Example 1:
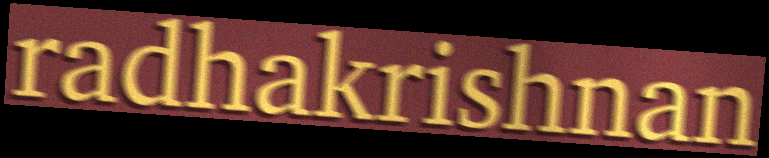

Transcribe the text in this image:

radhakrishnan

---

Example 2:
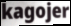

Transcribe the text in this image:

kagojer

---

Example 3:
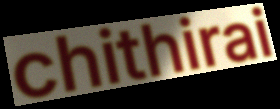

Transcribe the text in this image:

chithirai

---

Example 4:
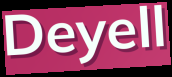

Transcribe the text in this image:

Deyell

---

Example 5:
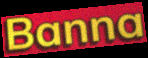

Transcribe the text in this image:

Banna